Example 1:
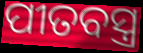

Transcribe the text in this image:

ପୀତବସ୍ତ୍ର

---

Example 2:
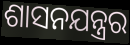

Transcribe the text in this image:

ଶାସନଯନ୍ତ୍ରର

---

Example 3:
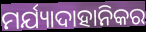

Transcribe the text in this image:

ମର୍ଯ୍ୟାଦାହାନିକର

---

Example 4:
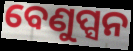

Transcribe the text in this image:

ବେଣୁପ୍ସନ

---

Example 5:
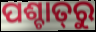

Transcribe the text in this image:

ପଶ୍ଚାତ୍‌ରୁ